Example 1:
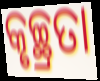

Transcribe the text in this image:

କୃଚ୍ଛ୍ରତା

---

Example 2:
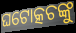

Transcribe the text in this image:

ଘଟୋତ୍କଚଙ୍କୁ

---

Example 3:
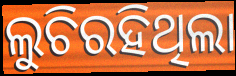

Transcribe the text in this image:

ଲୁଚିରହିଥିଲା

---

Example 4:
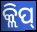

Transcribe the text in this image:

କ୍ଲିପ୍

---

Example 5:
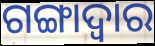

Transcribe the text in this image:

ଗଙ୍ଗାଦ୍ୱାର